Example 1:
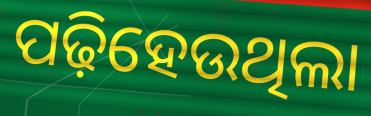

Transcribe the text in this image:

ପଢ଼ିହେଉଥିଲା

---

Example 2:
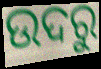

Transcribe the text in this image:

ଉଦରୁ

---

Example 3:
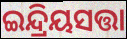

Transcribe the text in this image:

ଇନ୍ଦ୍ରିୟସତ୍ତା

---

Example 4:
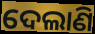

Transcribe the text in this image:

ଦେଲାଣି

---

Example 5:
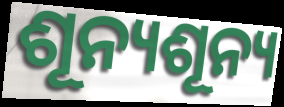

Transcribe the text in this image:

ଶୂନ୍ୟଶୂନ୍ୟ